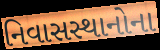
નિવાસસ્થાનોના